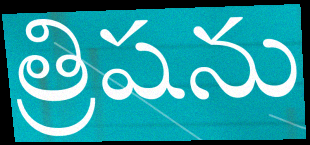
త్రిషను